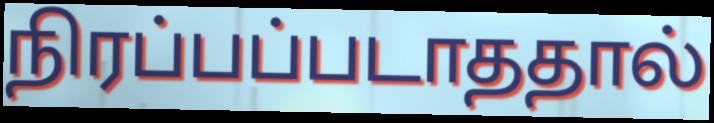
நிரப்பப்படாததால்